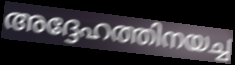
അദ്ദേഹത്തിനയച്ച